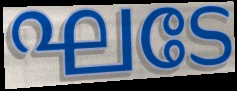
ഘടേ